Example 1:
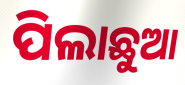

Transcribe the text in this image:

ପିଲାଛୁଆ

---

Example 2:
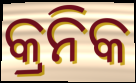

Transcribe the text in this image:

କ୍ରନିକ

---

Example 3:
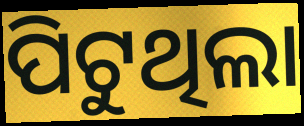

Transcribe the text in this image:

ପିଟୁଥିଲା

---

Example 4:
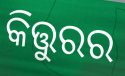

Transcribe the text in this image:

କିତ୍ତୁରର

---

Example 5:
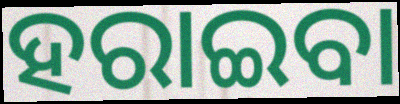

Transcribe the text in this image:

ହରାଇବା